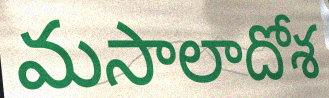
మసాలాదోశ